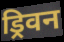
ड्रिवन